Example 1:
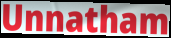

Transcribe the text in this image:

Unnatham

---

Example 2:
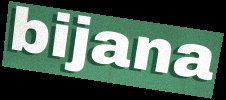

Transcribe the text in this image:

bijana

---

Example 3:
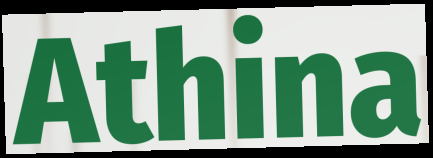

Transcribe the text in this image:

Athina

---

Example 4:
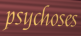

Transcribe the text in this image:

psychoses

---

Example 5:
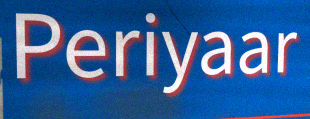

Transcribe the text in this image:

Periyaar